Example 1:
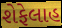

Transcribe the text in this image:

શેફેલાહ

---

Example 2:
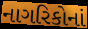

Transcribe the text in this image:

નાગરિકોનાં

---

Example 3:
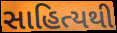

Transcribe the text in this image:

સાહિત્યથી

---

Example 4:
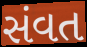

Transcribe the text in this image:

સંવત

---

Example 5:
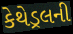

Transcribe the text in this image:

કેથેડ્રલની